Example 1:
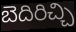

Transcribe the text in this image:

బెదిరిచ్చి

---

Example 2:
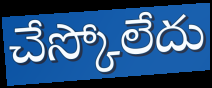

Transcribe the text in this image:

చేస్కోలేదు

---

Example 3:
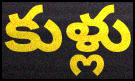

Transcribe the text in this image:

కుళ్లు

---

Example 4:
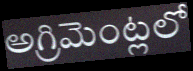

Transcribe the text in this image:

అగ్రిమెంట్లలో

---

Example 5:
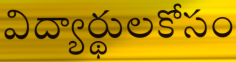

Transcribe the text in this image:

విద్యార్థులకోసం